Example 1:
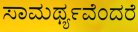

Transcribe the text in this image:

ಸಾಮರ್ಥ್ಯವೆಂದರೆ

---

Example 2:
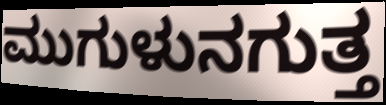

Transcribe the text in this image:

ಮುಗುಳುನಗುತ್ತ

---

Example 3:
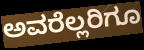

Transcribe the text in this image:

ಅವರೆಲ್ಲರಿಗೂ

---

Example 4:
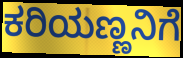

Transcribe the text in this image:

ಕರಿಯಣ್ಣನಿಗೆ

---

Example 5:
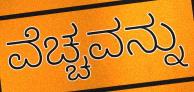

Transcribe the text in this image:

ವೆಚ್ಚವನ್ನು